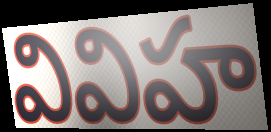
వివిహ